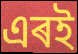
এৰই